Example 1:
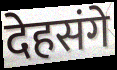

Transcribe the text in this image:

देहसंगे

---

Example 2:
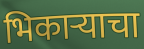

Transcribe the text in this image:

भिकाऱ्याचा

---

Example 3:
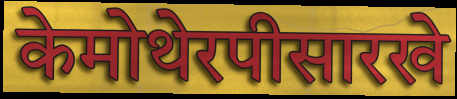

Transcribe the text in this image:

केमोथेरपीसारखे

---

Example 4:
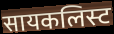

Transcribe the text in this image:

सायकलिस्ट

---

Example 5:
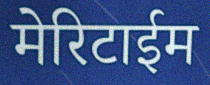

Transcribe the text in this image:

मेरिटाईम